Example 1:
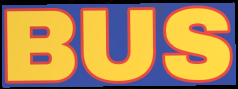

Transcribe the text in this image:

BUS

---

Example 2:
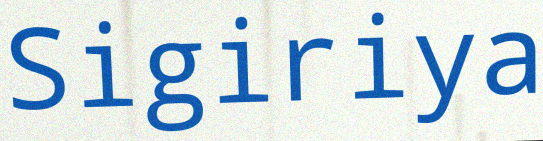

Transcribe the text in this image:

Sigiriya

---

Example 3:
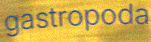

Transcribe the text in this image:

gastropoda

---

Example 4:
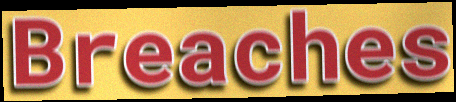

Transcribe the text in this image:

Breaches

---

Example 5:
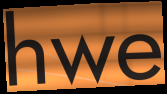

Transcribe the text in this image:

hwe